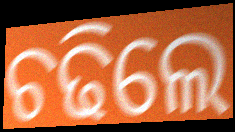
ଚଢିଲେ